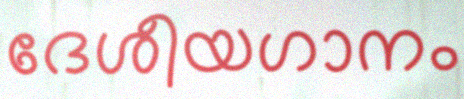
ദേശീയഗാനം